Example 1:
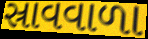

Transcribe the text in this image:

સ્રાવવાળા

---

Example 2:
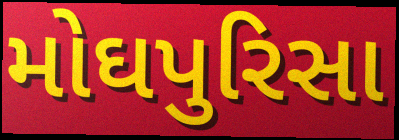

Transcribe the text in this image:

મોઘપુરિસા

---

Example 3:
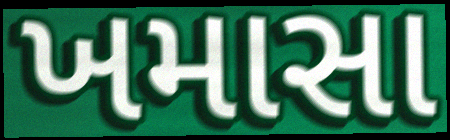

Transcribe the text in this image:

ખમાસા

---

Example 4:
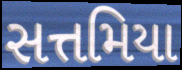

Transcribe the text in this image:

સત્તમિયા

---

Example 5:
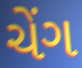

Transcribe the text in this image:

ચેંગ